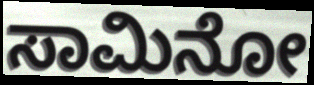
ಸಾಮಿನೋ